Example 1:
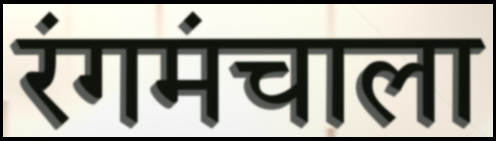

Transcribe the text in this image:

रंगमंचाला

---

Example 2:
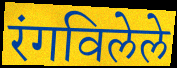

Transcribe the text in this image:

रंगविलेले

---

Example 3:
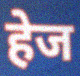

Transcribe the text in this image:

हेज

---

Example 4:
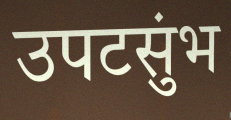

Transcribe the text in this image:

उपटसुंभ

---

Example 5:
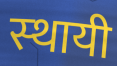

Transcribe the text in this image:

स्‍थायी